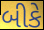
બીકે